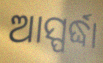
ଆସ୍ପର୍ଦ୍ଧା